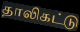
தாலிகட்டு